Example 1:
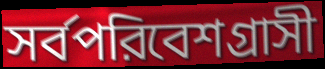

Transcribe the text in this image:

সর্বপরিবেশগ্রাসী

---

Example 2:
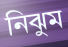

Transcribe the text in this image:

নিঝুম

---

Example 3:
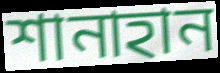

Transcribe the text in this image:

শানাহান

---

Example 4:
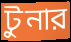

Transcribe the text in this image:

টুনার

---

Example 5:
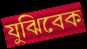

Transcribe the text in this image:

যুঝিবেক